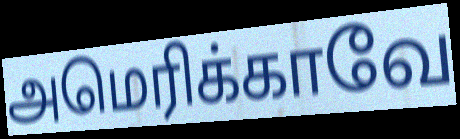
அமெரிக்காவே